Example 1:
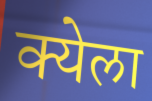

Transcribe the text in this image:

क्येला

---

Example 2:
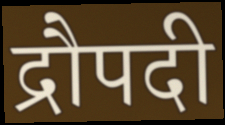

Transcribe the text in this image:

द्रौपदी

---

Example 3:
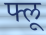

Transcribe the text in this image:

फ्लू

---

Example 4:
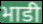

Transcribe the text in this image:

भाडी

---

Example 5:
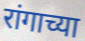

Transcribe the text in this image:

रांगाच्या